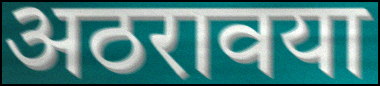
अठरावया